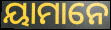
ୟାମାନେ